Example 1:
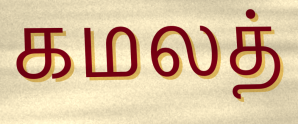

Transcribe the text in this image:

கமலத்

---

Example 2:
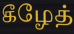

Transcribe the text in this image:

கீழேத்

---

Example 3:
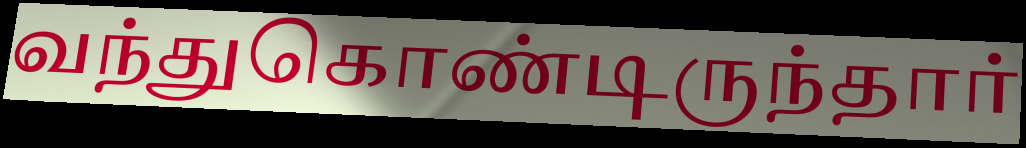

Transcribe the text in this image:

வந்துகொண்டிருந்தார்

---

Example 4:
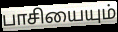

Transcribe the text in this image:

பாசியையும்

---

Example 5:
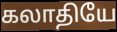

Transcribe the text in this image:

கலாதியே